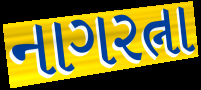
નાગરત્ના